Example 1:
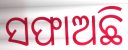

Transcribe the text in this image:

ସଫାଅଛି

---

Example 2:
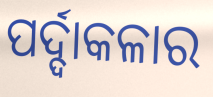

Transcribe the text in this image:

ପର୍ଦ୍ଦାକଳାର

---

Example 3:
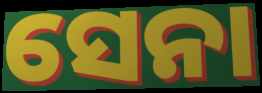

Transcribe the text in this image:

ସେନା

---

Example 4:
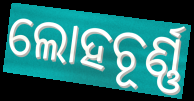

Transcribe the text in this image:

ଲୋହଚୂର୍ଣ୍ଣ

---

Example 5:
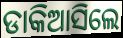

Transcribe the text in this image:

ଡାକିଆସିଲେ